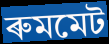
ৰুমমেট